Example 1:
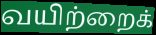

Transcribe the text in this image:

வயிற்றைக்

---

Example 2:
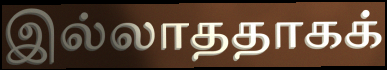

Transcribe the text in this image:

இல்லாததாகக்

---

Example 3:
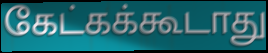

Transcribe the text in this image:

கேட்கக்கூடாது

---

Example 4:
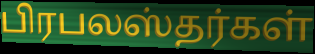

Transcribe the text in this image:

பிரபலஸ்தர்கள்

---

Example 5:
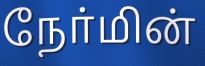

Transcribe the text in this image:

நேர்மின்